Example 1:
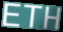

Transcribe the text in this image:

ETH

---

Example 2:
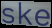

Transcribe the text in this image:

ske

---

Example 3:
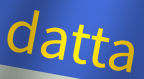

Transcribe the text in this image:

datta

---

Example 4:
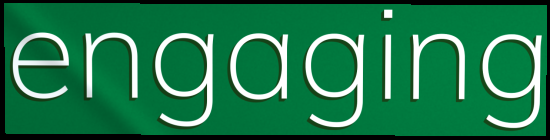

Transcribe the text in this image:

engaging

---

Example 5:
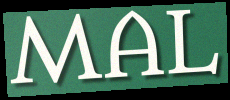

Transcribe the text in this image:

MAL